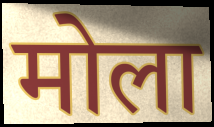
मोला